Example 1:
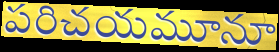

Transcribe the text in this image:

పరిచయమూనూ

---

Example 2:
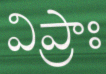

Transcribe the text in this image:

విప్రాః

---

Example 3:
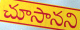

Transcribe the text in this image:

చూసానని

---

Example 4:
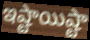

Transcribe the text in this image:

ఇష్టాయిష్టా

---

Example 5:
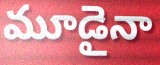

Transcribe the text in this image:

మూడైనా